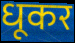
धूकर